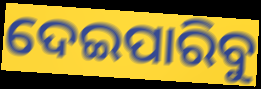
ଦେଇପାରିବୁ